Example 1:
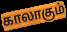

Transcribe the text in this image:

காலாகும்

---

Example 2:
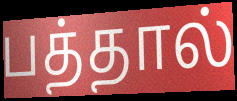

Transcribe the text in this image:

பத்தால்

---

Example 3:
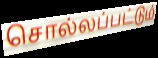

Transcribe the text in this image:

சொல்லப்பட்டும்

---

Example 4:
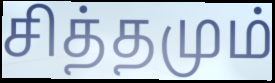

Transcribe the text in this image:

சித்தமும்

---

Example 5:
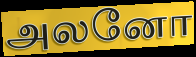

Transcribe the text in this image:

அலனோ